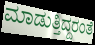
ಮಾಡುತ್ತಿದ್ದರಂತೆ